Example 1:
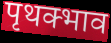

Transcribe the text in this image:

पृथक्भाव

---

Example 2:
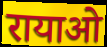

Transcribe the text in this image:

रायाओ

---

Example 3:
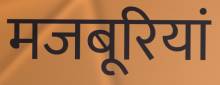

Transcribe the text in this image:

मजबूरियां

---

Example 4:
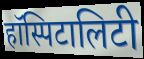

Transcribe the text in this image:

हॉस्पिटालिटी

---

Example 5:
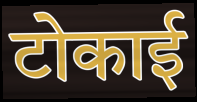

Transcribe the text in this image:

टोकाई